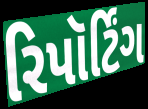
રિપૉર્ટિંગ